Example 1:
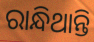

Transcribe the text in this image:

ରାନ୍ଧିଥାନ୍ତି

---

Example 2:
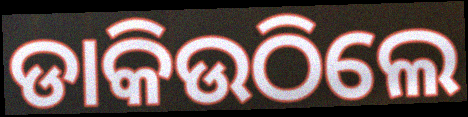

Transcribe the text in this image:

ଡାକିଉଠିଲେ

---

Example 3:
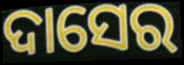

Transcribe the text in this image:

ଦାସେର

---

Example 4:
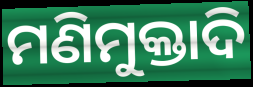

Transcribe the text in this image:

ମଣିମୁକ୍ତାଦି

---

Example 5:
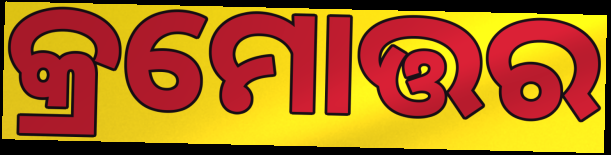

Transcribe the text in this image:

କ୍ରମୋତ୍ତର